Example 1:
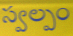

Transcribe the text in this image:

స్వల్పం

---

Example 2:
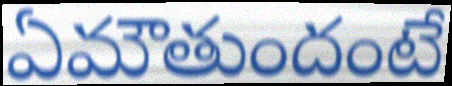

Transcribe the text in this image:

ఏమౌతుందంటే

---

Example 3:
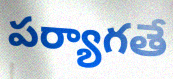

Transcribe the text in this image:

పర్యాగతే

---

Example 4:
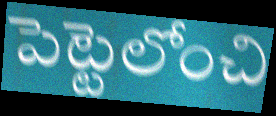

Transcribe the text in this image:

పెట్టెలోంచి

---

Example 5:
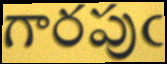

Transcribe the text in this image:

గారపుఁ